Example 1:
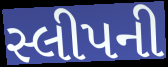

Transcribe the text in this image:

સ્લીપની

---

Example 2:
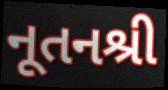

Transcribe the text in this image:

નૂતનશ્રી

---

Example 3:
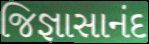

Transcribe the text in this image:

જિજ્ઞાસાનંદ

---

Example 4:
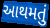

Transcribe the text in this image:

આથમતું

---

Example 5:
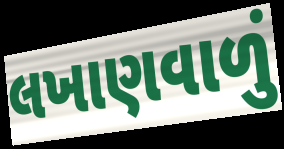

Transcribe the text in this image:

લખાણવાળું